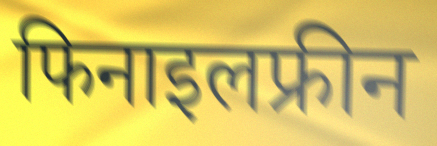
फिनाइलफ्रीन